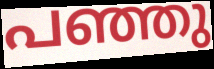
പഞ്ഞു